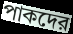
পাকদের